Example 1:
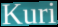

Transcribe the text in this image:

Kuri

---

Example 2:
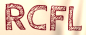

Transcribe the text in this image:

RCFL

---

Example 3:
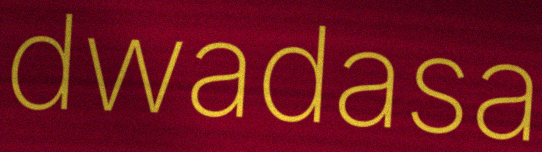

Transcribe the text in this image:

dwadasa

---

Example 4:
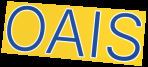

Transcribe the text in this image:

OAIS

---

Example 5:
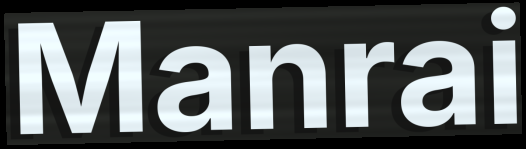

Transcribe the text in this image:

Manrai